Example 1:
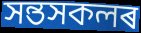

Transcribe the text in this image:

সন্তসকলৰ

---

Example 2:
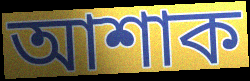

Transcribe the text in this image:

আশাক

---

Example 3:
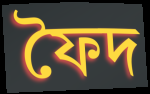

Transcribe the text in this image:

ফৈদ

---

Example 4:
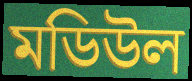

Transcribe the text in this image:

মডিউল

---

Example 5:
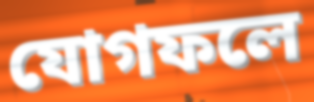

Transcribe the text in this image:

যোগফলে